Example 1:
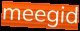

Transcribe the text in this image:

meegid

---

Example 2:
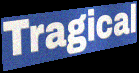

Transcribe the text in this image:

Tragical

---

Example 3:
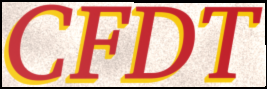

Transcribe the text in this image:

CFDT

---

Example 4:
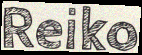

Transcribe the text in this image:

Reiko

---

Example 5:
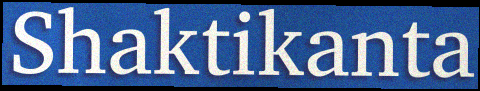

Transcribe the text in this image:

Shaktikanta